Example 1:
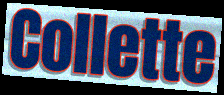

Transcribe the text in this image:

Collette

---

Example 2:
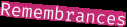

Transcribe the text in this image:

Remembrances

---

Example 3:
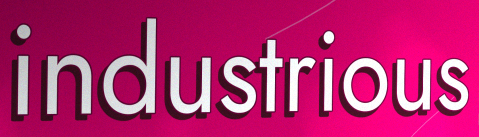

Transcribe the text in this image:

industrious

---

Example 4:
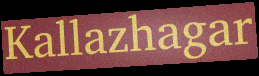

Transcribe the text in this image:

Kallazhagar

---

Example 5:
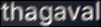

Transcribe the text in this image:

thagaval